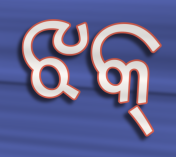
ଝକ୍